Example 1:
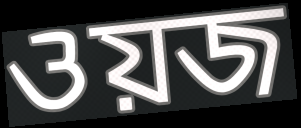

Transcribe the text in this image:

ওয়জ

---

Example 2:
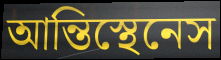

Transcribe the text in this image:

আন্তিস্থেনেস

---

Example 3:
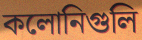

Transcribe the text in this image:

কলোনিগুলি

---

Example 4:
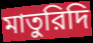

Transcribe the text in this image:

মাতুরিদি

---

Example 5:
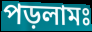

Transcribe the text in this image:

পড়লামঃ